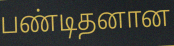
பண்டிதனான